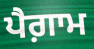
ਪੈਗ਼ਾਮ